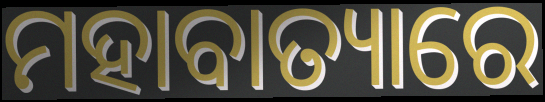
ମହାବାତ୍ୟାରେ